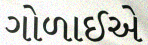
ગોળાઈએ